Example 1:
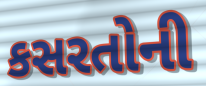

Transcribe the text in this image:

કસરતોની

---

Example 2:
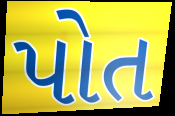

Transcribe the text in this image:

પોત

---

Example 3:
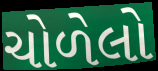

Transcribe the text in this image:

ચોળેલો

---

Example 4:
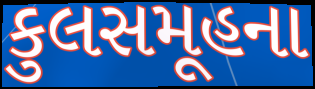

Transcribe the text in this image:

કુલસમૂહના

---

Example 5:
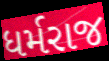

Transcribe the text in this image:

ધર્મરાજ